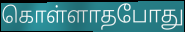
கொள்ளாதபோது